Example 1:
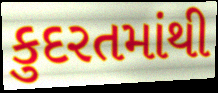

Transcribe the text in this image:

કુદરતમાંથી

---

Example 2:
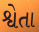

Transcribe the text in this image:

શ્વેતા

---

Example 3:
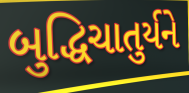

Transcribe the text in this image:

બુદ્ધિચાતુર્યને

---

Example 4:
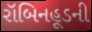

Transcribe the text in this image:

રૉબિનહૂડની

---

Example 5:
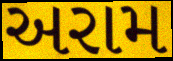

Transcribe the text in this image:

અરામ